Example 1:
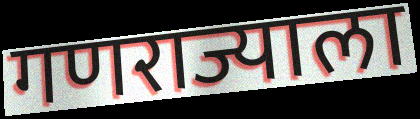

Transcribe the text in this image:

गणराज्याला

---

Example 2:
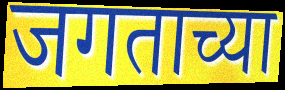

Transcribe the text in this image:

जगताच्या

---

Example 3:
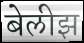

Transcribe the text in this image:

बेलीझ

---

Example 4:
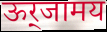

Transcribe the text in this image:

ऊर्जामय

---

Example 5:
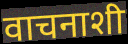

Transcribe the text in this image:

वाचनाशी